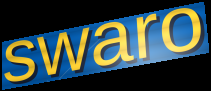
swaro